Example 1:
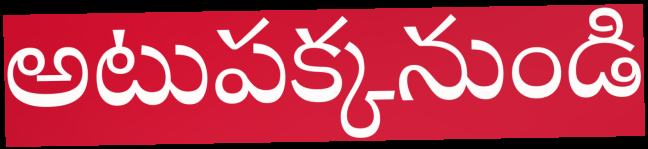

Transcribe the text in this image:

అటుపక్కనుండి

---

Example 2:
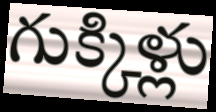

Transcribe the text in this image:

గుక్కిళ్లు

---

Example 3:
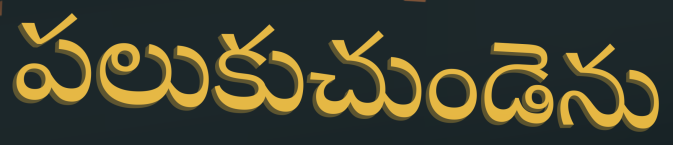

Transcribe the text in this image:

పలుకుచుండెను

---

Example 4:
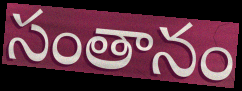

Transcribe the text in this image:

సంతానం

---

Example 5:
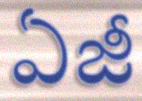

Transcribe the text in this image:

ఏజీ